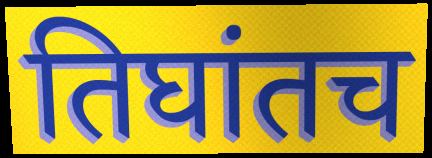
तिघांतच